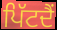
ਪਿੱਟਦੈਂ